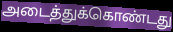
அடைத்துக்கொண்டது